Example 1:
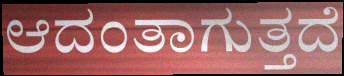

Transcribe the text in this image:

ಆದಂತಾಗುತ್ತದೆ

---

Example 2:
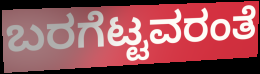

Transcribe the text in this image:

ಬರಗೆಟ್ಟವರಂತೆ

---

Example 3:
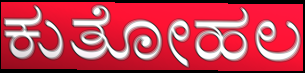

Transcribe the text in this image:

ಕುತೋಹಲ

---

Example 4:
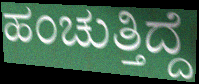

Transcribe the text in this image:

ಹಂಚುತ್ತಿದ್ದೆ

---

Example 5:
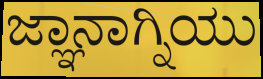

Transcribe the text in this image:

ಜ್ಞಾನಾಗ್ನಿಯು